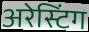
अरेस्टिंग